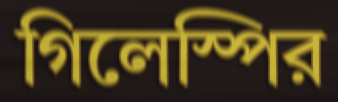
গিলেস্পির